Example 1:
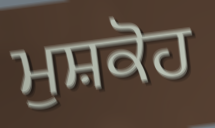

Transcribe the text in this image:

ਮੁਸ਼ਕੋਹ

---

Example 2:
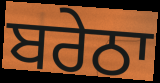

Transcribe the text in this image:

ਬਰੇਠਾ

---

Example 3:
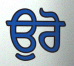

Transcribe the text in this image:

ਉਰੋ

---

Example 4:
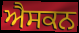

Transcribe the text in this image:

ਐਸਕਨ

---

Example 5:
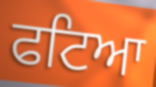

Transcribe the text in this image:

ਫਟਿਆ